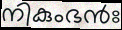
നികുംഭൻഃ